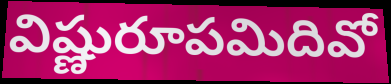
విష్ణురూపమిదివో